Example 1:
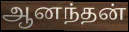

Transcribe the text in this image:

ஆனந்தன்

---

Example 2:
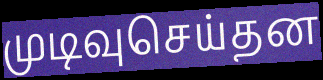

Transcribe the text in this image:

முடிவுசெய்தன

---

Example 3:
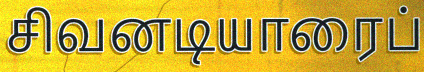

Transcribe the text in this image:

சிவனடியாரைப்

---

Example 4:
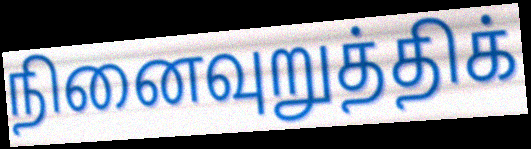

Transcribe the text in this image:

நினைவுறுத்திக்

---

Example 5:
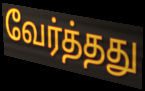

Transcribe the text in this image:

வேர்த்தது